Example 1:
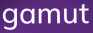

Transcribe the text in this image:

gamut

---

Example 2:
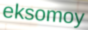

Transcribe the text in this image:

eksomoy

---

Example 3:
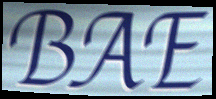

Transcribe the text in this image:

BAE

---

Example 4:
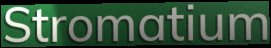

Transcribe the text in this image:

Stromatium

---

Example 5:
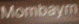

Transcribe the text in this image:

Mombaym